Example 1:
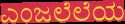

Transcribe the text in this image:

ಎಂಜಲೆಲೆಯ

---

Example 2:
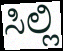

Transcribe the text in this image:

ಸಿಲ್ಲಿ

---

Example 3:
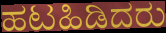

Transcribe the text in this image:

ಹಟಹಿಡಿದರು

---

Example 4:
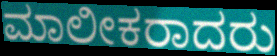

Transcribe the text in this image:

ಮಾಲೀಕರಾದರು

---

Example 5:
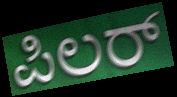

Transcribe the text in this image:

ಪಿಲರ್